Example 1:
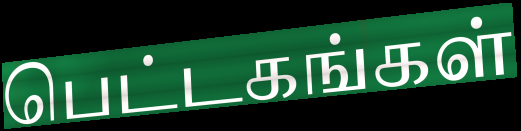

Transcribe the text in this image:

பெட்டகங்கள்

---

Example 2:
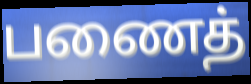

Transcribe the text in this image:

பணைத்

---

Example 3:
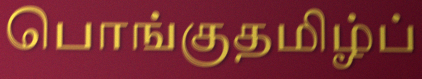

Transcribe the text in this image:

பொங்குதமிழ்ப்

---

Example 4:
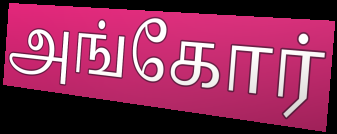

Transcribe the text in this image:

அங்கோர்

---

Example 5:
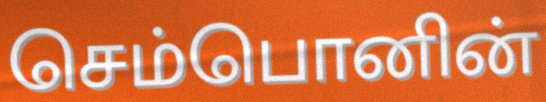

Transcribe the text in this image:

செம்பொனின்